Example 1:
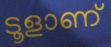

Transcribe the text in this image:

ടൂളാണ്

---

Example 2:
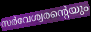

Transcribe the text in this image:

സർവേശ്വരന്റെയും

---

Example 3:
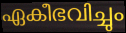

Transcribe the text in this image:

ഏകീഭവിച്ചും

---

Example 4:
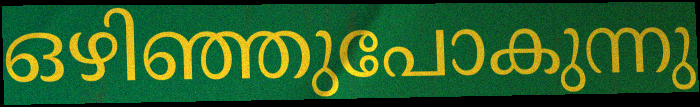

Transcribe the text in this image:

ഒഴിഞ്ഞുപോകുന്നു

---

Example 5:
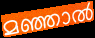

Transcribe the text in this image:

മഞ്ഞാൽ